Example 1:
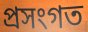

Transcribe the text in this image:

প্ৰসংগত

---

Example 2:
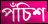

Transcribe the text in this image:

পঁচিশ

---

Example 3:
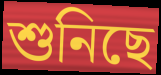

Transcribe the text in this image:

শুনিছে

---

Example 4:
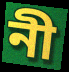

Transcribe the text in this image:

নী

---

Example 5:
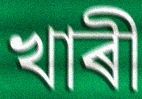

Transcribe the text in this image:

খাৰী